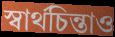
স্বার্থচিন্তাও